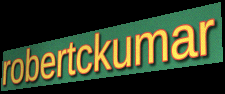
robertckumar